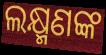
ଲକ୍ଷ୍ମଣଙ୍କ